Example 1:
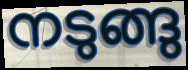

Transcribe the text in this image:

നടുങ്ങു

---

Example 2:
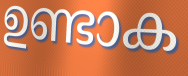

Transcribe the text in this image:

ഉണ്ടാക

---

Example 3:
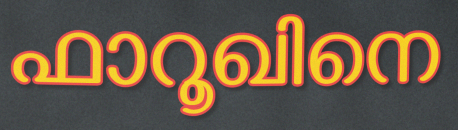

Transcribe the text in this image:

ഫാറൂഖിനെ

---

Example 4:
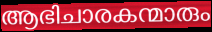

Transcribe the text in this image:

ആഭിചാരകന്മാരും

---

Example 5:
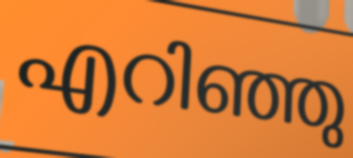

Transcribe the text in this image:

എറിഞ്ഞു